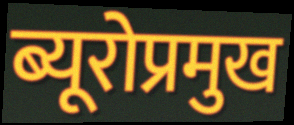
ब्यूरोप्रमुख